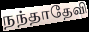
நந்தாதேவி